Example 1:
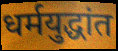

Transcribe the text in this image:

धर्मयुद्धांत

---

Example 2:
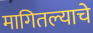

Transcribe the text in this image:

मागितल्याचे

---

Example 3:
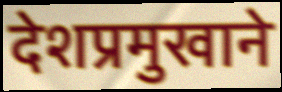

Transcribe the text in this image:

देशप्रमुखाने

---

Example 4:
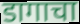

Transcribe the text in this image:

डागाचा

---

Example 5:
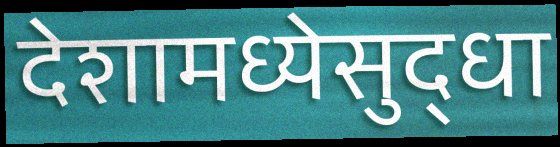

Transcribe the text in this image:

देशामध्येसुद्धा